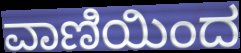
ವಾಣಿಯಿಂದ